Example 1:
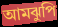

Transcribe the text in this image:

আমঝুপি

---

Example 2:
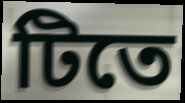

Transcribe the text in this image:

টিতে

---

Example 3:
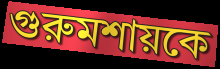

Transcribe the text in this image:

গুরুমশায়কে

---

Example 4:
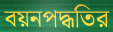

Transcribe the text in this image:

বয়নপদ্ধতির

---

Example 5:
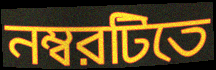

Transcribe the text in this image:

নম্বরটিতে